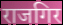
राजगिर